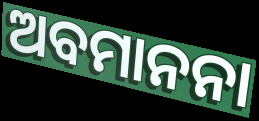
ଅବମାନନା